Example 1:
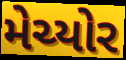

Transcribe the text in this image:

મેચ્યોર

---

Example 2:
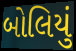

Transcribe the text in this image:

બોલિયું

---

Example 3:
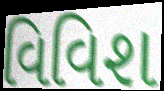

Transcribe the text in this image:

વિવિશ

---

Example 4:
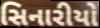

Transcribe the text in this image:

સિનારીયો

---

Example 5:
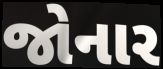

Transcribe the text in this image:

જોનાર